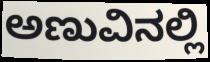
ಅಣುವಿನಲ್ಲಿ